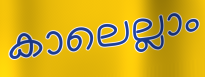
കാലെല്ലാം